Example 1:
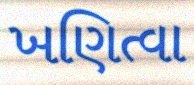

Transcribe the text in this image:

ખણિત્વા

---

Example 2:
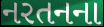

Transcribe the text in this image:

નરતનના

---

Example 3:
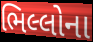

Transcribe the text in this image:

ભિલ્લોના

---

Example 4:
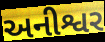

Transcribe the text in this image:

અનીશ્વર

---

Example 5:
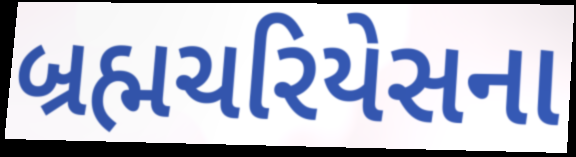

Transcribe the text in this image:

બ્રહ્મચરિયેસના